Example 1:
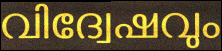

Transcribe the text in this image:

വിദ്വേഷവും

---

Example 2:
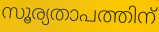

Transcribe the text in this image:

സൂര്യതാപത്തിന്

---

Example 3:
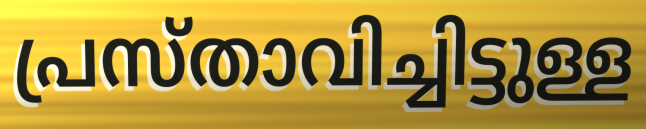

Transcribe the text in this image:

പ്രസ്താവിച്ചിട്ടുള്ള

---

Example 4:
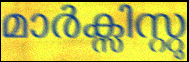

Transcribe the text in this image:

മാർക്സിസ്റ്റു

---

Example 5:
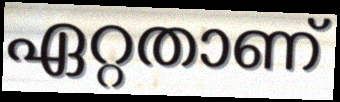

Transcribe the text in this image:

ഏറ്റതാണ്